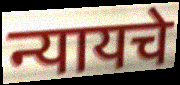
न्यायचे